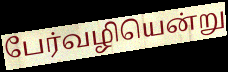
பேர்வழியென்று